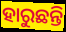
ହାରୁଛନ୍ତି